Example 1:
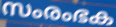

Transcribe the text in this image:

സംരംഭക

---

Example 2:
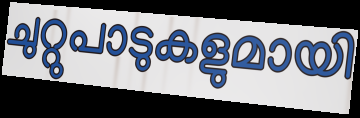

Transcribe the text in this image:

ചുറ്റുപാടുകളുമായി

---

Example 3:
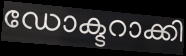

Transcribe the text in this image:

ഡോക്ടറാക്കി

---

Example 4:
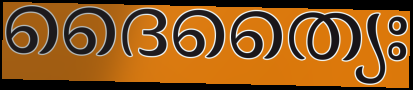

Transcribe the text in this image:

ദൈത്യൈഃ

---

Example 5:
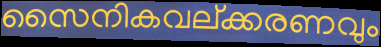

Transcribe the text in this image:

സൈനികവല്ക്കരണവും